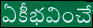
ఏకీభవించే